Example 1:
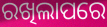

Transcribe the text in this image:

ରଖିଲାପରେ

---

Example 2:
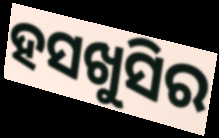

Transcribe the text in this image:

ହସଖୁସିର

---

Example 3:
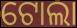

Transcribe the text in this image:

ଟୋଲା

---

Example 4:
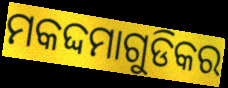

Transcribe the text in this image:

ମକଦ୍ଦମାଗୁଡିକର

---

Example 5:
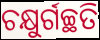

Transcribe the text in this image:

ଚକ୍ଷୁର୍ଗଚ୍ଛତି